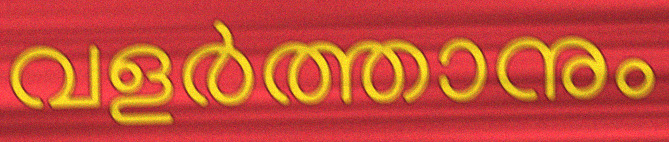
വളർത്താനും